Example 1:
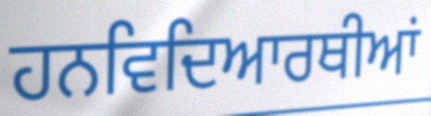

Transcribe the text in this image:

ਹਨਵਿਦਿਆਰਥੀਆਂ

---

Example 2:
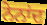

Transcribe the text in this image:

ਨੇਨਾਂਦ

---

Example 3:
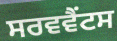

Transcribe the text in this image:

ਸਰਵਵੈਂਟਸ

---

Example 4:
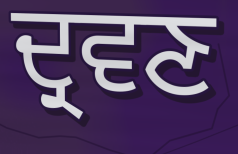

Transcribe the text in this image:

ਦ੍ਰਵਣ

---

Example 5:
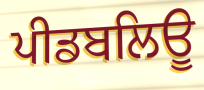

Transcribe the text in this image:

ਪੀਡਬਲਿਊ